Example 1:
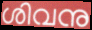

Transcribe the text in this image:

ശിവനു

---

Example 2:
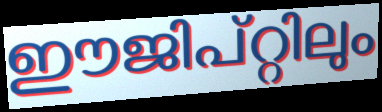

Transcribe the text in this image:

ഈജിപ്റ്റിലും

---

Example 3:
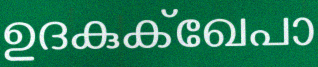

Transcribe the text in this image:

ഉദകുക്ഖേപാ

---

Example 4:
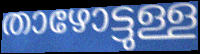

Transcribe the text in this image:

താഴോട്ടുള്ള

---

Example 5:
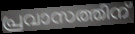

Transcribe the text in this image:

പ്രവാസത്തിന്